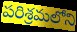
పరిశ్రమలోని